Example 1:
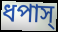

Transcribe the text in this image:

ধপাস্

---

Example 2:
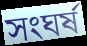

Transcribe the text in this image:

সংঘর্ষ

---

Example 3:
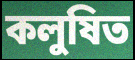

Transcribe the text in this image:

কলুষিত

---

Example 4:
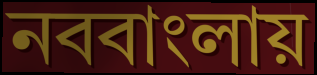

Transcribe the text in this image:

নববাংলায়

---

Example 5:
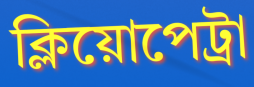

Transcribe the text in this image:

ক্লিয়োপেট্রা